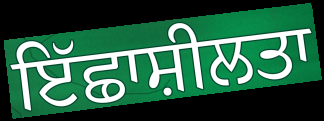
ਇੱਛਾਸ਼ੀਲਤਾ